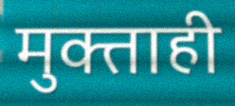
मुक्ताही